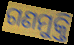
ଗଣମୁକ୍ତି